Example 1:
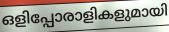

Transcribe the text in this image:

ഒളിപ്പോരാളികളുമായി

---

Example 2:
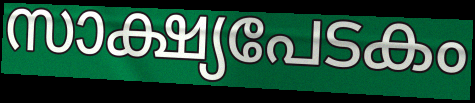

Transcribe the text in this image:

സാക്ഷ്യപേടകം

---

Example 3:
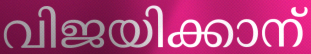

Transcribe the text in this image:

വിജയിക്കാന്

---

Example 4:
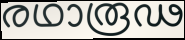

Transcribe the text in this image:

രഥാരൂഢ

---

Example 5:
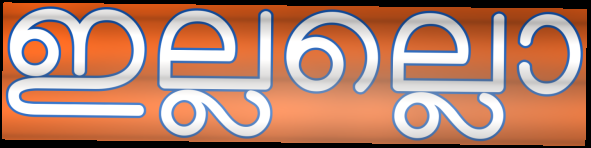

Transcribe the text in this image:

ഇല്ലല്ലൊ